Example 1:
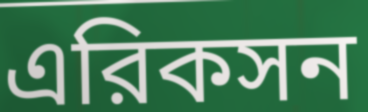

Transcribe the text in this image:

এরিকসন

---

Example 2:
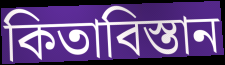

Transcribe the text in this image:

কিতাবিস্তান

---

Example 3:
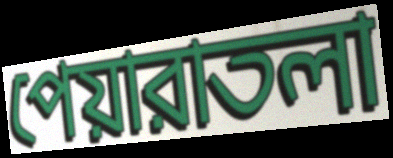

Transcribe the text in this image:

পেয়ারাতলা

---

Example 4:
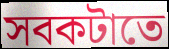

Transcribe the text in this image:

সবকটাতে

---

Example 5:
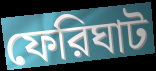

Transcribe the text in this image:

ফেরিঘাট